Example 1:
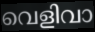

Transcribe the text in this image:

വെളിവാ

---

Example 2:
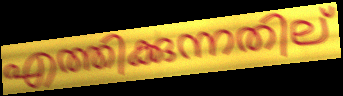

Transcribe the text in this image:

എത്തിക്കുന്നതില്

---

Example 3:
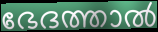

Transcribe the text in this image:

ഭേദത്താൽ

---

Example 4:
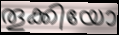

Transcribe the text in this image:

തൂക്കിയോ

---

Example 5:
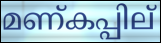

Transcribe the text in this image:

മണ്കപ്പില്